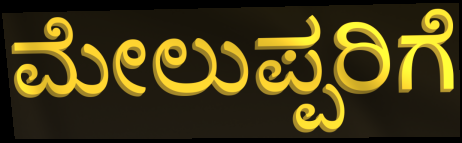
ಮೇಲುಪ್ಪರಿಗೆ